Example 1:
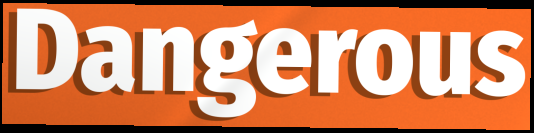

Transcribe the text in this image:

Dangerous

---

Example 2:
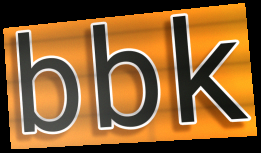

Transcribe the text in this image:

bbk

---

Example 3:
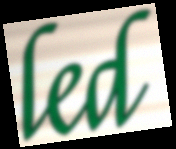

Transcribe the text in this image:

led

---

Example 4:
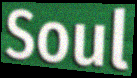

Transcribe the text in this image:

Soul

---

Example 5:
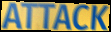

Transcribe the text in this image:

ATTACK